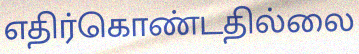
எதிர்கொண்டதில்லை